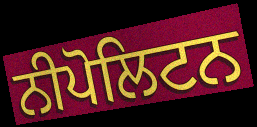
ਨੀਪੋਲਿਟਨ